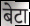
बेटा